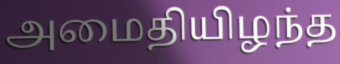
அமைதியிழந்த